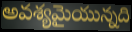
అవశ్యమైయున్నది